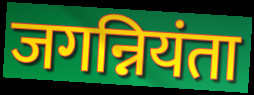
जगन्नियंता